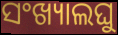
ସଂଖ୍ୟାଲଘୁ